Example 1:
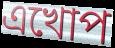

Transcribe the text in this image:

এখোপ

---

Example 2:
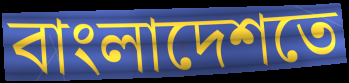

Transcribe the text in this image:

বাংলাদেশতে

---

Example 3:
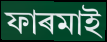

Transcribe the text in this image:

ফাৰমাই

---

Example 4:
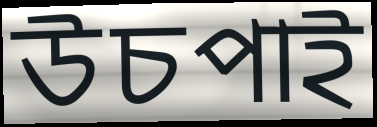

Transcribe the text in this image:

উচপাই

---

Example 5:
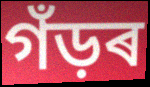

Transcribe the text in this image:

গঁড়ৰ